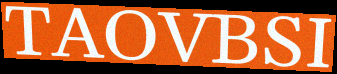
TAOVBSI